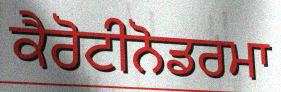
ਕੈਰੋਟੀਨੋਡਰਮਾ